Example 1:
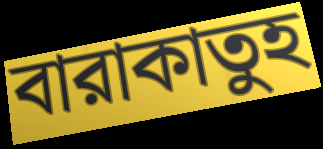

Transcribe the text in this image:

বারাকাতুহ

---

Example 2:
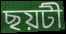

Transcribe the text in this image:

ছয়টী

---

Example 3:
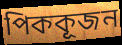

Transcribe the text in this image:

পিককূজন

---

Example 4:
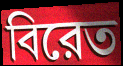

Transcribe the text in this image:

বিরেত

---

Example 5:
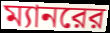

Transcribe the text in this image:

ম্যানরের